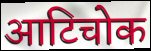
आटिचोक